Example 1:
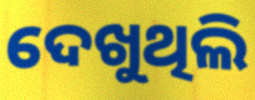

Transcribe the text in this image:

ଦେଖୁଥିଲି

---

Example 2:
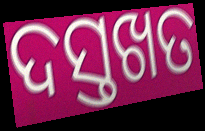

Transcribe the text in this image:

ଦସ୍ତଖତ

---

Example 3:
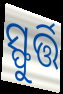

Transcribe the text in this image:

ସ୍ଫୁର୍ତ୍ତି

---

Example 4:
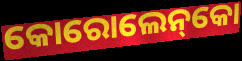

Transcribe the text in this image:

କୋରୋଲେନ୍‌କୋ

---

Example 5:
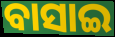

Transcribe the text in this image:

ବାସାଇ